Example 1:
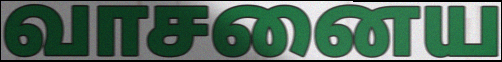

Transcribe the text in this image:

வாசனைய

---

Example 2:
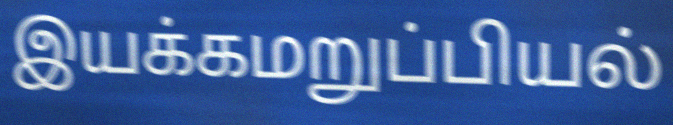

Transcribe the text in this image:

இயக்கமறுப்பியல்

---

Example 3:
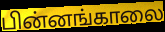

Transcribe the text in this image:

பின்னங்காலை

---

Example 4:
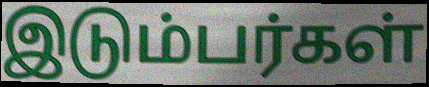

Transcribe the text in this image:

இடும்பர்கள்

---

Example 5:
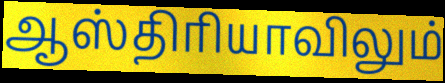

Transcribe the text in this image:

ஆஸ்திரியாவிலும்